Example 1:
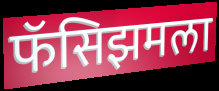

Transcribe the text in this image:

फॅसिझमला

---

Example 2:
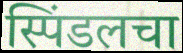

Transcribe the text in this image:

स्पिंडलचा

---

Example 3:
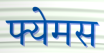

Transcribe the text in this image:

फ्येमस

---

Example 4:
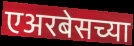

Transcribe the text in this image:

एअरबेसच्या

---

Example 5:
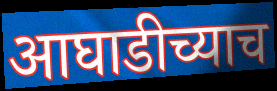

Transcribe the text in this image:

आघाडीच्याच